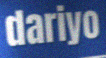
dariyo